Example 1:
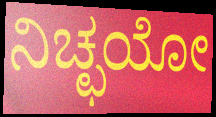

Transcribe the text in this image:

ನಿಚ್ಛಯೋ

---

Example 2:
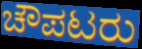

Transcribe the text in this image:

ಚೌಪಟರು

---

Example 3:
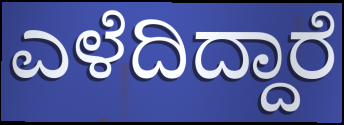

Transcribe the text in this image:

ಎಳೆದಿದ್ದಾರೆ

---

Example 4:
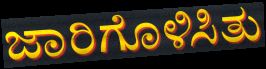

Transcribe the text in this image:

ಜಾರಿಗೊಳಿಸಿತು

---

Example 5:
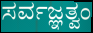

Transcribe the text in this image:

ಸರ್ವಜ್ಞತ್ವಂ